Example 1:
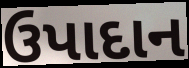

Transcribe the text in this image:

ઉપાદાન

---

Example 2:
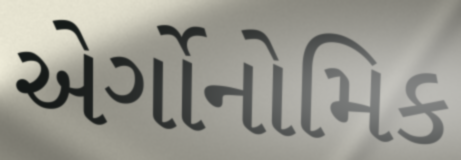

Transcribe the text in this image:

એર્ગોનોમિક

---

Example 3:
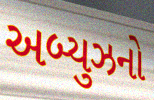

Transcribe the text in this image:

અબ્યુઝનો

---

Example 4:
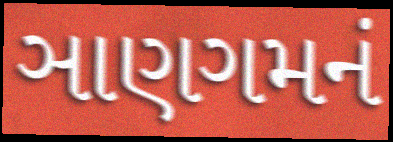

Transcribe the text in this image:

ઞાણગમનં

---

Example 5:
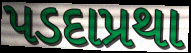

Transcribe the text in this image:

પડદાપ્રથા